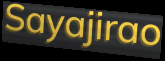
Sayajirao